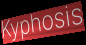
Kyphosis